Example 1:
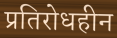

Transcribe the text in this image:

प्रतिरोधहीन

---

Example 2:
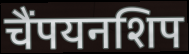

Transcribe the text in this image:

चैंपयनशिप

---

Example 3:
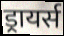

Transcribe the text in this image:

ड्रायर्स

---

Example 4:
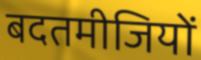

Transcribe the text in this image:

बदतमीजियों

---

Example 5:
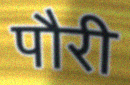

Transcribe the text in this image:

पौरी